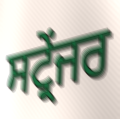
ਸਟ੍ਰੇਂਜਰ